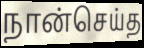
நான்செய்த